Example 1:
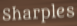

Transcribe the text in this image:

Sharples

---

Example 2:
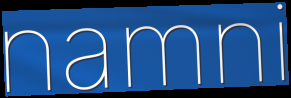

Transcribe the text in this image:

namni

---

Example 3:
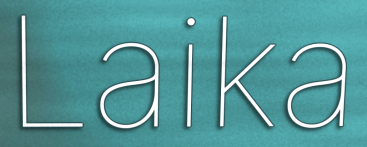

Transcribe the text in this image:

Laika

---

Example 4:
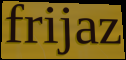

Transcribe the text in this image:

frijaz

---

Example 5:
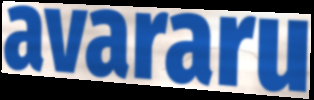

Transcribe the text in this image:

avararu